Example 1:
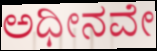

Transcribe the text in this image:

ಅಧೀನವೇ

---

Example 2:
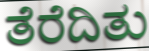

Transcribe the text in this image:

ತೆರೆದಿತು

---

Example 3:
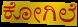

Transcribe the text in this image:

ಕೋಗಿಲೆ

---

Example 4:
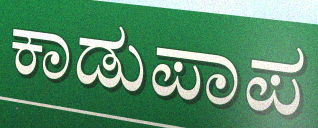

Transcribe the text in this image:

ಕಾಡುಪಾಪ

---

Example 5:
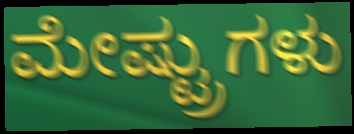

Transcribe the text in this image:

ಮೇಷ್ಟ್ರುಗಳು